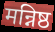
मन्निष्ठ